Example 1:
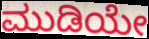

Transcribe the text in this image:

ಮುಡಿಯೇ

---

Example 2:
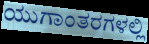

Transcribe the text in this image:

ಯುಗಾಂತರಗಳಲ್ಲಿ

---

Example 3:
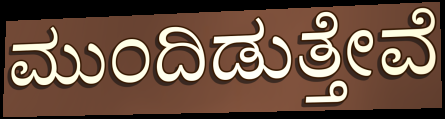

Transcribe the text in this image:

ಮುಂದಿಡುತ್ತೇವೆ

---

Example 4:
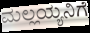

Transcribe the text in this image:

ಮಲ್ಲಯ್ಯನಿಗೆ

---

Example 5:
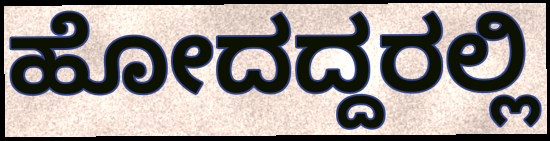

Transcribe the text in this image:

ಹೋದದ್ದರಲ್ಲಿ